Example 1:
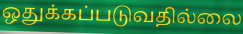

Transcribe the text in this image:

ஒதுக்கப்படுவதில்லை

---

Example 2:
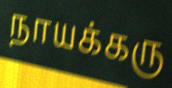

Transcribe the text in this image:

நாயக்கரு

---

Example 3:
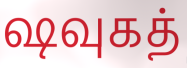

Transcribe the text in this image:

ஷவுகத்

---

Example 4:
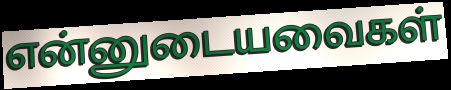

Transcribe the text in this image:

என்னுடையவைகள்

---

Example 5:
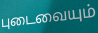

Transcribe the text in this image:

புடைவையும்